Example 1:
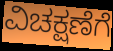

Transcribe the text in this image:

ವಿಚಕ್ಷಣೆಗೆ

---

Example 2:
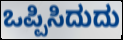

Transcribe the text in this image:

ಒಪ್ಪಿಸಿದುದು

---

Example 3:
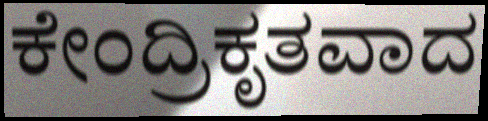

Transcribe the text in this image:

ಕೇಂದ್ರಿಕೃತವಾದ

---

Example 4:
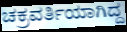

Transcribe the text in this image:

ಚಕ್ರವರ್ತಿಯಾಗಿದ್ದ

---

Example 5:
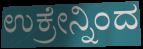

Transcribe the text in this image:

ಉಕ್ರೇನ್ನಿಂದ